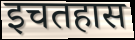
इचतहास